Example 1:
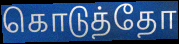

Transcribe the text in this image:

கொடுத்தோ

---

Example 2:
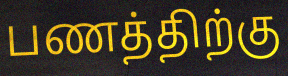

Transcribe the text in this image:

பணத்திற்கு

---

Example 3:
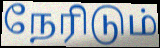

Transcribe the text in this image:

நேரிடும்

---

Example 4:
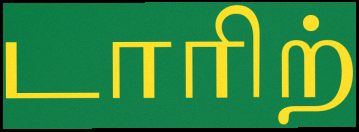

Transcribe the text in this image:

டாரிற்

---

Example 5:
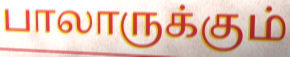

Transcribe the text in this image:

பாலாருக்கும்